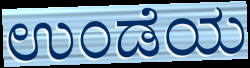
ಉಂಡೆಯ